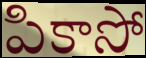
పికాసో